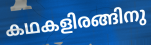
കഥകളിരങ്ങിനു